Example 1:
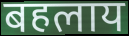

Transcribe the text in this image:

बहलाय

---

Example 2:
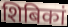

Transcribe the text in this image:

शिबिकां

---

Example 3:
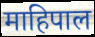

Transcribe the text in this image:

माहिपाल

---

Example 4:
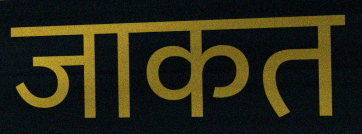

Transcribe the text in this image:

जाकत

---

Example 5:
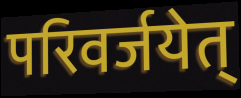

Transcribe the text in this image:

परिवर्जयेत्